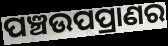
ପଞ୍ଚଉପପ୍ରାଣର